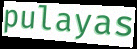
pulayas